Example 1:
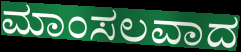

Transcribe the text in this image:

ಮಾಂಸಲವಾದ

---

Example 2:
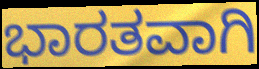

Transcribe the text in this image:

ಭಾರತವಾಗಿ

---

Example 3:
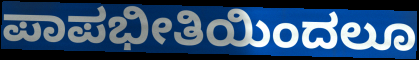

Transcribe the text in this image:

ಪಾಪಭೀತಿಯಿಂದಲೂ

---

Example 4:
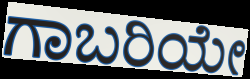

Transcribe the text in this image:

ಗಾಬರಿಯೇ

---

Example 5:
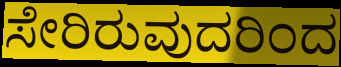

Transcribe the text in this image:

ಸೇರಿರುವುದರಿಂದ